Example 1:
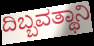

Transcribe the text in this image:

ದಿಬ್ಬವತ್ಥಾನಿ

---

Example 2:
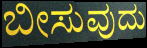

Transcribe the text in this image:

ಬೀಸುವುದು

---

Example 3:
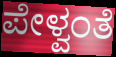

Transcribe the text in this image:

ಪೇಳ್ವಂತೆ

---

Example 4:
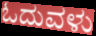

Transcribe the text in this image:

ಓದುವಳು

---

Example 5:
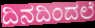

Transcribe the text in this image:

ದಿನದಿಂದಲೆ